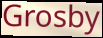
Grosby